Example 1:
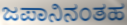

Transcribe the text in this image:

ಜಪಾನಿನಂತಹ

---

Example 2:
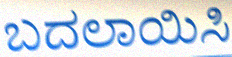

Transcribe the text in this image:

ಬದಲಾಯಿಸಿ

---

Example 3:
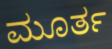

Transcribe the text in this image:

ಮೂರ್ತ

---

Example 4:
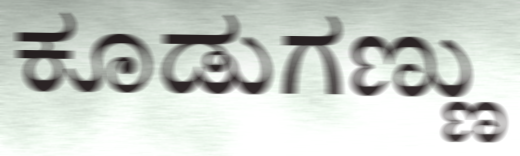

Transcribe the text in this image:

ಕೂಡುಗಣ್ಣು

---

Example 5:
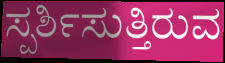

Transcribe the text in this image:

ಸ್ಪರ್ಶಿಸುತ್ತಿರುವ